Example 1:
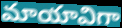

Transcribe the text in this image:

మాయావిగా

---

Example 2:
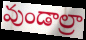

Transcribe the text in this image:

వుండాల్రా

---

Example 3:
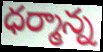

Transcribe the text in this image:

ధర్మాన్న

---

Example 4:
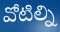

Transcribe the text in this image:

వోటిల్ని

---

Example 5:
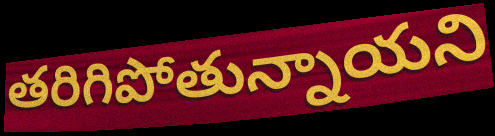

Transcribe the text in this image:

తరిగిపోతున్నాయని